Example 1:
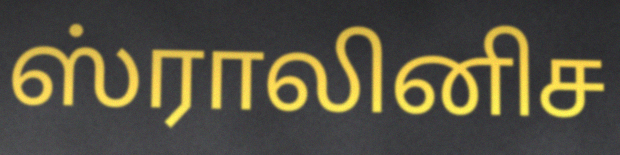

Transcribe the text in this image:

ஸ்ராலினிச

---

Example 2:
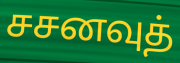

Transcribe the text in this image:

சசனவுத்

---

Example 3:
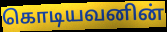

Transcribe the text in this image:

கொடியவனின்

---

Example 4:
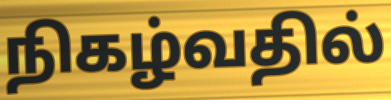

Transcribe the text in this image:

நிகழ்வதில்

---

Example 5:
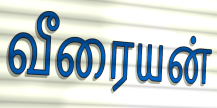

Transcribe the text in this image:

வீரையன்